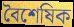
বৈশেষিক